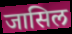
जासिल